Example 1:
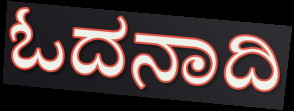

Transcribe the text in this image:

ಓದನಾದಿ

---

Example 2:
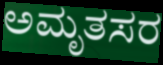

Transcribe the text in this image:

ಅಮೃತಸರ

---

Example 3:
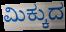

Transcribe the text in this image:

ಮಿಕ್ಕುದ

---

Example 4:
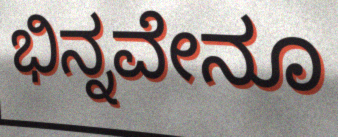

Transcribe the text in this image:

ಭಿನ್ನವೇನೂ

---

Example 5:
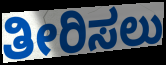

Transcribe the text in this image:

ತೀರಿಸಲು